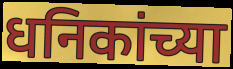
धनिकांच्या